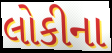
લોકીના